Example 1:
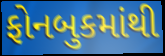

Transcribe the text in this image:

ફોનબુકમાંથી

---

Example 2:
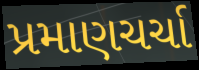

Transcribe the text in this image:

પ્રમાણચર્ચા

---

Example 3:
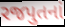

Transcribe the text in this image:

રજપુતનાં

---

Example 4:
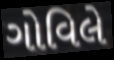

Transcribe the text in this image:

ગોવિલે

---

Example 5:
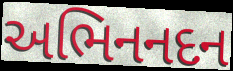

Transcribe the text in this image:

અભિનનદન